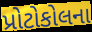
પ્રોટોકોલના